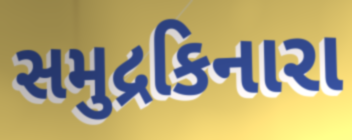
સમુદ્રકિનારા